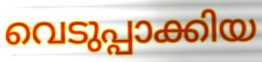
വെടുപ്പാക്കിയ